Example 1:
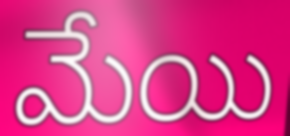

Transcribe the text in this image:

మేయి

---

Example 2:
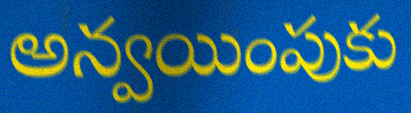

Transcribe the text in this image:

అన్వయింపుకు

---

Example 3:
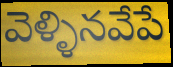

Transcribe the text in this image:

వెళ్ళినవేపే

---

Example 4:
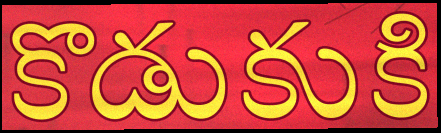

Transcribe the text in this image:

కొడుకుకి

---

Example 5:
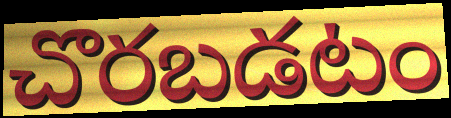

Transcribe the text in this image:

చొరబడటం